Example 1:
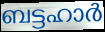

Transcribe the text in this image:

ബട്ടഹാർ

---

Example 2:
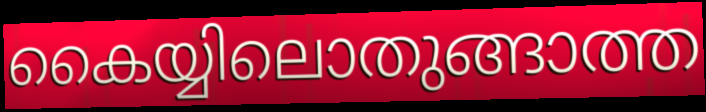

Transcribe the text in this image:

കൈയ്യിലൊതുങ്ങാത്ത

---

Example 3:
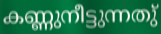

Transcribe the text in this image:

കണ്ണുനീട്ടുന്നതു്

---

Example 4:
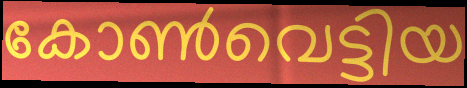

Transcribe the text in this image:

കോൺവെട്ടിയ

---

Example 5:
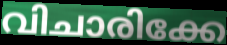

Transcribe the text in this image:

വിചാരിക്കേ